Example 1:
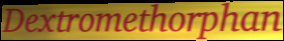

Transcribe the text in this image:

Dextromethorphan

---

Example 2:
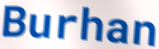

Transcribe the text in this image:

Burhan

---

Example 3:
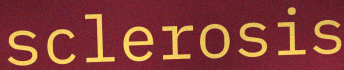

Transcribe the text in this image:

sclerosis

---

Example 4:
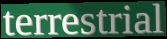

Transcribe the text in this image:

terrestrial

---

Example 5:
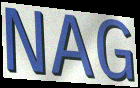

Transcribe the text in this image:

NAG